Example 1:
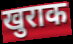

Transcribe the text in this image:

खुराक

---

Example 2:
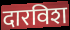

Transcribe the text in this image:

दारविश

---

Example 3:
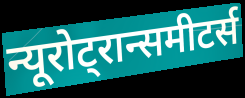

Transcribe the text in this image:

न्यूरोट्रान्समीटर्स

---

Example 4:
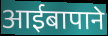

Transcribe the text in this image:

आईबापाने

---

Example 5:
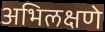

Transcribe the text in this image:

अभिलक्षणे